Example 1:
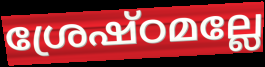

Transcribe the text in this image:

ശ്രേഷ്ഠമല്ലേ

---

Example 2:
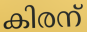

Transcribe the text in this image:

കിരന്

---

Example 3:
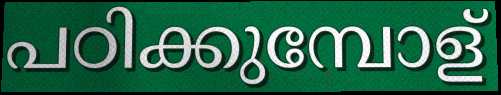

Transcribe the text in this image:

പഠിക്കുമ്പോള്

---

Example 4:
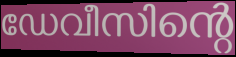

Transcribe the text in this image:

ഡേവീസിന്റെ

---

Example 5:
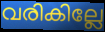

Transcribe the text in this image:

വരികില്ലേ